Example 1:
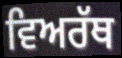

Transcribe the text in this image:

ਵਿਅਰੱਥ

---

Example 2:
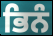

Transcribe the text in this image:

ਭਿਨੰ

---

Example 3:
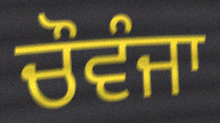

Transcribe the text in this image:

ਚੌਵੰਜਾ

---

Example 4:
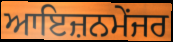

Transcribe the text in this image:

ਆਇਜ਼ਨਮੇਂਜਰ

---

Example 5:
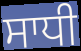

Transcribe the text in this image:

ਸਾਧੀ